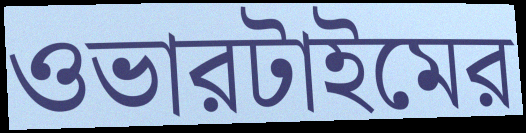
ওভারটাইমের